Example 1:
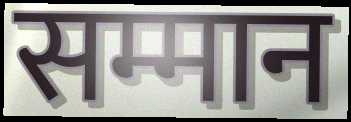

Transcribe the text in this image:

सम्‍मान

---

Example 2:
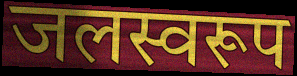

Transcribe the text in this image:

जलस्वरूप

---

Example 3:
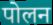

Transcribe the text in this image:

पोलन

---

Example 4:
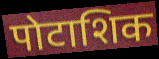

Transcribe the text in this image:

पोटाशिक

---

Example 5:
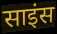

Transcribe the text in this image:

साइंस